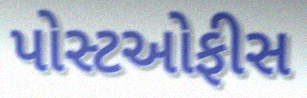
પોસ્ટઓફીસ